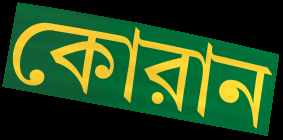
কোরান